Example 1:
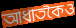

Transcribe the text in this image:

আধাতকৈও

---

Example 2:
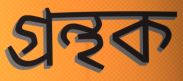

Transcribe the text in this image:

গ্ৰন্থক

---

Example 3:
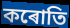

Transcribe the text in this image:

কৰোতি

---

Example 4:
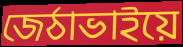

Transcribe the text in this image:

জেঠাভাইয়ে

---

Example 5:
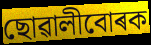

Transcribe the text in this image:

ছোৱালীবোৰক